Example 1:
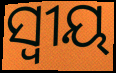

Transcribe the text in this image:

ସ୍ବୀୟ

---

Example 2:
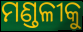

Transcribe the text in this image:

ମଣ୍ଡଳୀକୁ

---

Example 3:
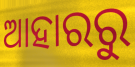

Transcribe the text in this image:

ଆହାରରୁ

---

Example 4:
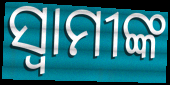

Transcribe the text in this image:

ସ୍ଵାମୀଙ୍କ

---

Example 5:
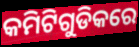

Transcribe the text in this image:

କମିଟିଗୁଡିକରେ